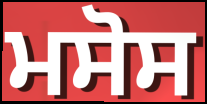
ਮਸੋਸ